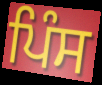
ਪਿੰਸ